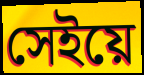
সেইয়ে